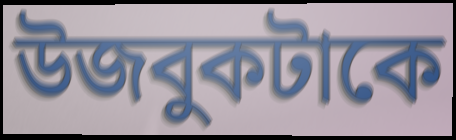
উজবুকটাকে